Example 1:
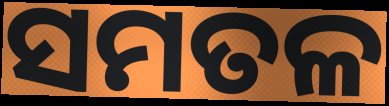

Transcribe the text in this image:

ସମତଳ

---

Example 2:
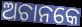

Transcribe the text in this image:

ଅଚାନକେ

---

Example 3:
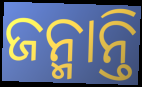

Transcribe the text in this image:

ଜନ୍ମାନ୍ତି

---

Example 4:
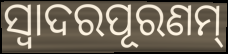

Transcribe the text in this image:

ସ୍ଵାଦରପୂରଣମ୍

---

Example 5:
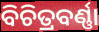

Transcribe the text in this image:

ବିଚିତ୍ରବର୍ଣ୍ଣା